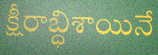
క్షీరాబ్ధిశాయినే